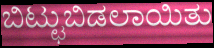
ಬಿಟ್ಟುಬಿಡಲಾಯಿತು